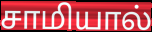
சாமியால்